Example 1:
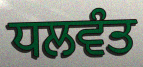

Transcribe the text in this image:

ਧਲਵੰਤ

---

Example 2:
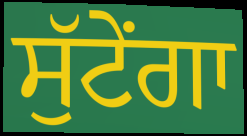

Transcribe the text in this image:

ਸੁੱਟੇਂਗਾ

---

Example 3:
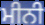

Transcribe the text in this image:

ਮੀਨੀ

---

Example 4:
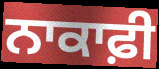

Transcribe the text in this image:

ਨਾਕਾਫ਼ੀ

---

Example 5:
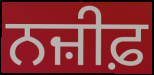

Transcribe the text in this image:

ਨਜ਼ੀਫ਼